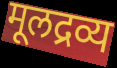
मूलद्रव्य